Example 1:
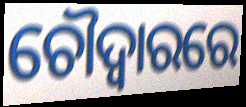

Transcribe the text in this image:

ଚୌଦ୍ୱାରରେ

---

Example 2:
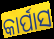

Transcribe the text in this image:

କାର୍ପାସ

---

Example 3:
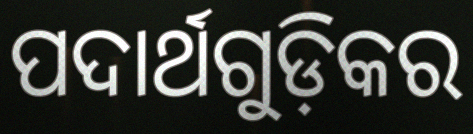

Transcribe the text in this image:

ପଦାର୍ଥଗୁଡ଼ିକର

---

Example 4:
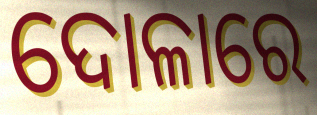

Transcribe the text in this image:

ଦୋଳାରେ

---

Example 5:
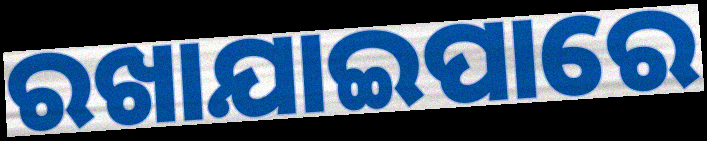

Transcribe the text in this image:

ରଖାଯାଇପାରେ